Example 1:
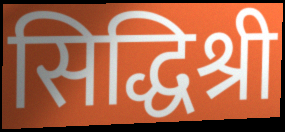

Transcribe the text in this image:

सिद्धिश्री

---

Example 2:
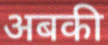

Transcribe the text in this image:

अबकी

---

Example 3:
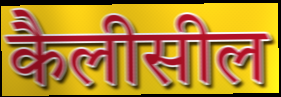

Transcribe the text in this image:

कैलीसील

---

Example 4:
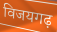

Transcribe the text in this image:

विजयगढ़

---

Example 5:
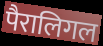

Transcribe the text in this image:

पैरालिगल